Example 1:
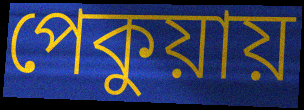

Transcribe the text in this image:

পেকুয়ায়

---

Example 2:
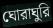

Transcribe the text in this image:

ঘোরাঘুরি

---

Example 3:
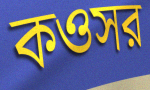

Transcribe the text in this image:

কওসর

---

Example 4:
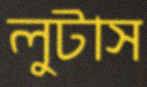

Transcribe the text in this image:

লুটাস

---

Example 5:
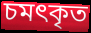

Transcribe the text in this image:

চমৎকৃত